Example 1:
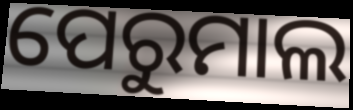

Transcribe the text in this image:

ପେରୁମାଲ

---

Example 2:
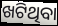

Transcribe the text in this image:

ଖଟିଥିବା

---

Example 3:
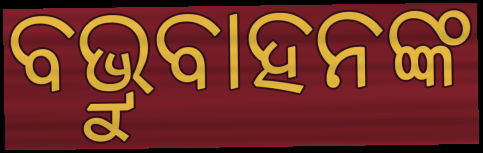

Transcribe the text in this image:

ବଭ୍ରୁବାହନଙ୍କ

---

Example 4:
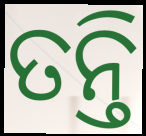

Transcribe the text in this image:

ତନ୍ତି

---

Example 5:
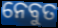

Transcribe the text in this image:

ନେବୁତ